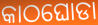
କାଠଘୋଡା